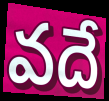
వదే